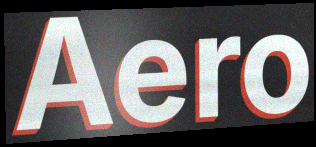
Aero